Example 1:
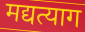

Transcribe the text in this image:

मद्यत्याग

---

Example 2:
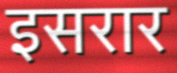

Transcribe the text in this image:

इसरार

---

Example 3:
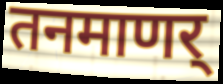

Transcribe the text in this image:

तनमाणर्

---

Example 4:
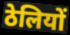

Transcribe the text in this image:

ठेलियों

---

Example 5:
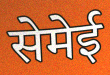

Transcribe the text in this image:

सेमेई